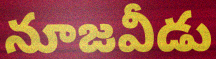
నూజవీడు